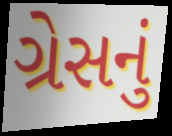
ગ્રેસનું